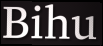
Bihu